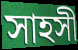
সাহসী